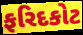
ફરિદકોટ